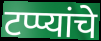
टप्प्यांचे